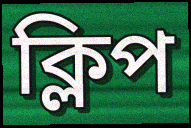
ক্লিপ